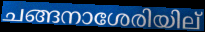
ചങ്ങനാശേരിയില്